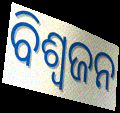
ବିଶ୍ଵଜନ